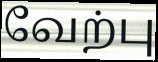
வேற்பு